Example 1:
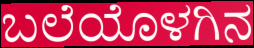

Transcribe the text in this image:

ಬಲೆಯೊಳಗಿನ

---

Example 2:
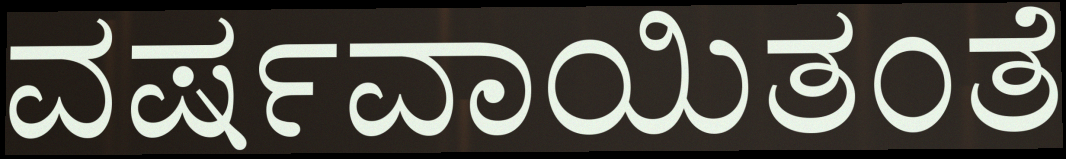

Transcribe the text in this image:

ವರ್ಷವಾಯಿತಂತೆ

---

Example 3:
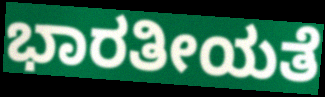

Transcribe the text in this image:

ಭಾರತೀಯತೆ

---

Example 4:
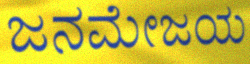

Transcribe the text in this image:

ಜನಮೇಜಯ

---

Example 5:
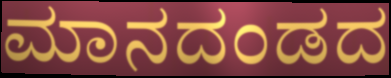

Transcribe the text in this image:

ಮಾನದಂಡದ